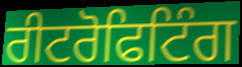
ਰੀਟਰੋਫਿਟਿੰਗ